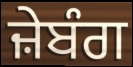
ਜ਼ੇਬੰਗ